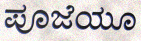
ಪೂಜೆಯೂ